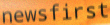
newsfirst